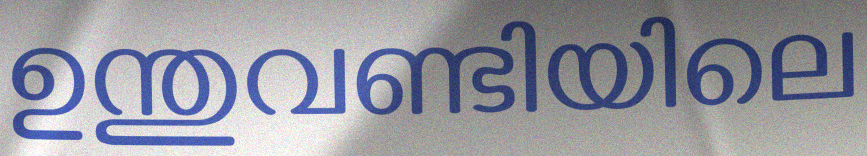
ഉന്തുവണ്ടിയിലെ